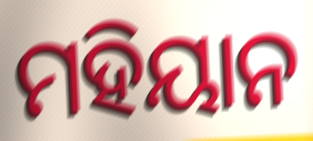
ମହିୟାନ